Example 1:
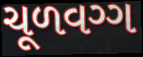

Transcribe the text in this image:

ચૂળવગ્ગ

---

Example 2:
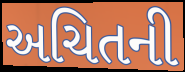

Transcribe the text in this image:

અચિતની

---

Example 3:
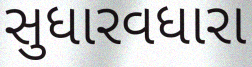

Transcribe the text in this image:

સુધારવધારા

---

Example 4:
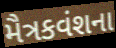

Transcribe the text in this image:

મૈત્રકવંશના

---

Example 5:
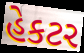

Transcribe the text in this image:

હેકટર